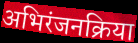
अभिरंजनक्रिया